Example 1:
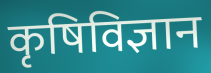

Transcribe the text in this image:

कृषिविज्ञान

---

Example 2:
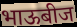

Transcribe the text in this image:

भाऊबीज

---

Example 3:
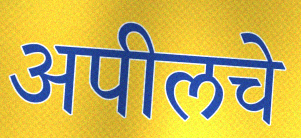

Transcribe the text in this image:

अपीलचे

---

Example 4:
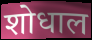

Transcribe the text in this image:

शोधाल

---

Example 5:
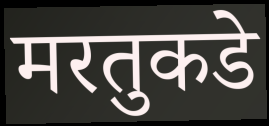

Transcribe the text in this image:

मरतुकडे